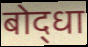
बोद्धा